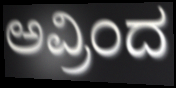
ಅವ್ರಿಂದ